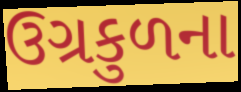
ઉગ્રકુળના